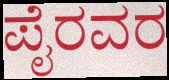
ಪೈರವರ